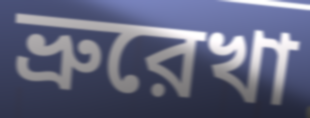
ভ্রুরেখা